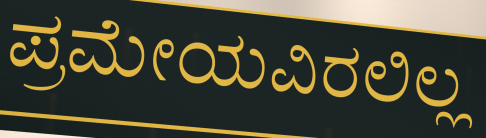
ಪ್ರಮೇಯವಿರಲಿಲ್ಲ